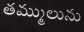
తమ్ములును